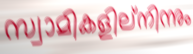
സ്വാമികളില്നിന്നും